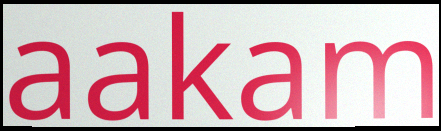
aakam